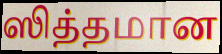
ஸித்தமான